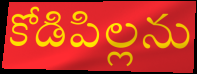
కోడిపిల్లను